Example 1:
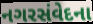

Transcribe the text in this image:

નગરસંવેદના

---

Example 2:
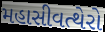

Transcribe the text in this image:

મહાસીવત્થેરો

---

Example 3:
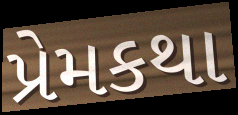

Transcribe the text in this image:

પ્રેમકથા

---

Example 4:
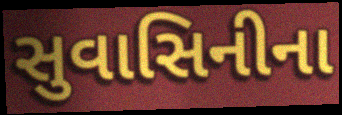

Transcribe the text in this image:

સુવાસિનીના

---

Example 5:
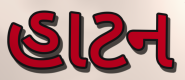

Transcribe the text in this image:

હાટન